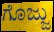
ಗೊಜ್ಜು